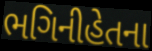
ભગિનીહેતના